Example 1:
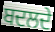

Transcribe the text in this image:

ਬਦਲਦੇ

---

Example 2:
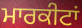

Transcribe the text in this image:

ਮਾਰਕੀਟਾਂ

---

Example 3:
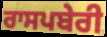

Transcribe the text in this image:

ਰਾਸਪਬੇਰੀ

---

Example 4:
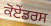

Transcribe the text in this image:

ਕੋਏਂਡਰਸ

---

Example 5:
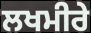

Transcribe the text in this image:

ਲਖਮੀਰੇ